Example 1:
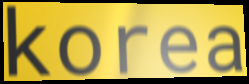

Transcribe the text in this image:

korea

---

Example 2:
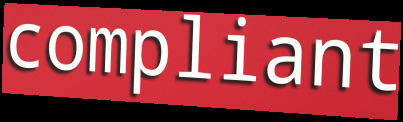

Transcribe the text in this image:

compliant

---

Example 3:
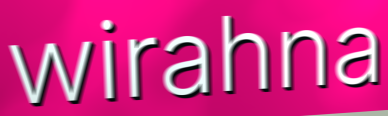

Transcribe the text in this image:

wirahna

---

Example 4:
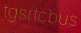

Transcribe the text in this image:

tgsrtcbus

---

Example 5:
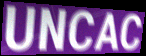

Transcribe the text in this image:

UNCAC